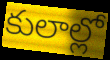
కులాల్లో